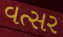
વત્સર